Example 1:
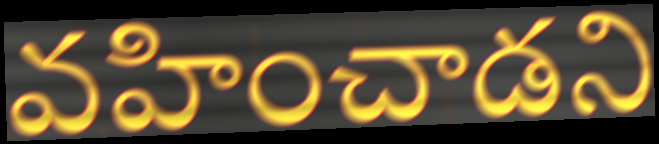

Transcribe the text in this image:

వహించాడని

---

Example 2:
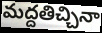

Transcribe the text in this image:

మద్దతిచ్చినా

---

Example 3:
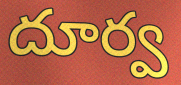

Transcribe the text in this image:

దూర్వ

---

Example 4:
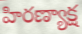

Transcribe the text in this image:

హిరణ్యాక్ష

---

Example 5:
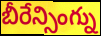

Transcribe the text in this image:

బీరేన్సింగ్ను